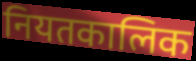
नियतकालिक